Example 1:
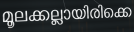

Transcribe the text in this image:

മൂലക്കല്ലായിരിക്കെ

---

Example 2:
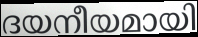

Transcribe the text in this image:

ദയനീയമായി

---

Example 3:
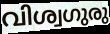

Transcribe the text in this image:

വിശ്വഗുരു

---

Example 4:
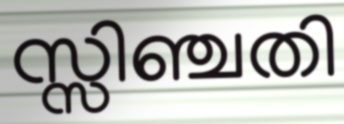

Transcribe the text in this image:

സ്സിഞ്ചതി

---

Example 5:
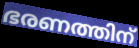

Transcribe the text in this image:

ഭരണത്തിന്